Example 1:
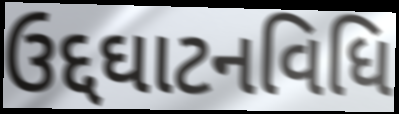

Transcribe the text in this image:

ઉદ્દઘાટનવિધિ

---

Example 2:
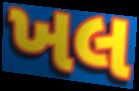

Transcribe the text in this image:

ખલ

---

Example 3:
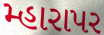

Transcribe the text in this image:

મ્હારાપર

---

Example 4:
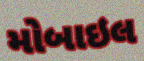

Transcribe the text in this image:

મોબાઇલ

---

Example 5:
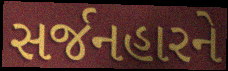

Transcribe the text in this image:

સર્જનહારને